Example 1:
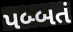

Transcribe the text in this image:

પબ્બતં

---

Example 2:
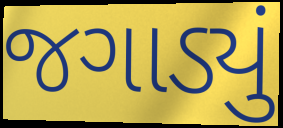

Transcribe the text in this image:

જગાડ્યું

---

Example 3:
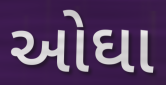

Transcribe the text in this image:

ઓઘા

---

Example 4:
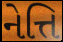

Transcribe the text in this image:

નેત્તિ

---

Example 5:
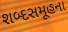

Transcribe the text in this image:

શબ્દસમૂહના